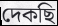
দেকছি